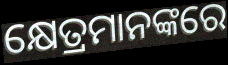
କ୍ଷେତ୍ରମାନଙ୍କରେ